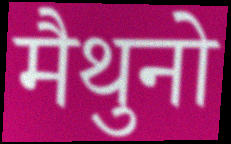
मैथुनो